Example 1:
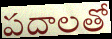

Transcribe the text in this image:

పదాలతో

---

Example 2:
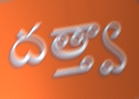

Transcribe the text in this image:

దత్త్వా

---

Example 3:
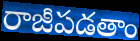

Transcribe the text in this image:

రాజీపడతాం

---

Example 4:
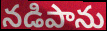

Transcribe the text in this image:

నడిపాను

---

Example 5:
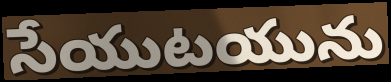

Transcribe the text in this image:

సేయుటయును